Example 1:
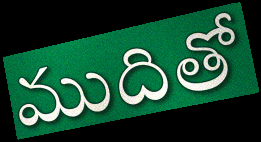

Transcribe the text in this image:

ముదితో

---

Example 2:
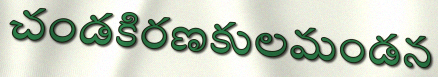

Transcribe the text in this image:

చండకిరణకులమండన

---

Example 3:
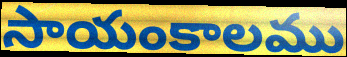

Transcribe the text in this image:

సాయంకాలము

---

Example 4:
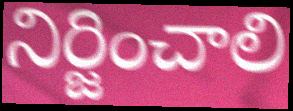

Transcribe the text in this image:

నిర్జించాలి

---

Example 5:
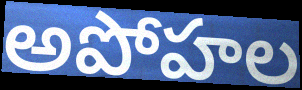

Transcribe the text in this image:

అపోహల